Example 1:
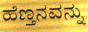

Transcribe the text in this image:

ಹೆಣ್ತನವನ್ನು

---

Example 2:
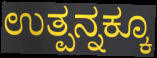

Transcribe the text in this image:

ಉತ್ಪನ್ನಕ್ಕೂ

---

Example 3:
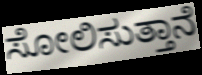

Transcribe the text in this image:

ಸೋಲಿಸುತ್ತಾನೆ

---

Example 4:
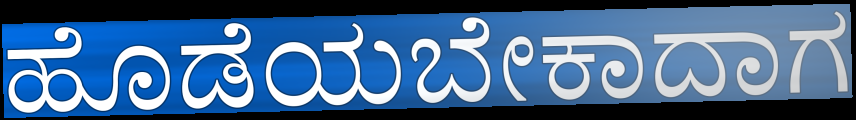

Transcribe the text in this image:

ಹೊಡೆಯಬೇಕಾದಾಗ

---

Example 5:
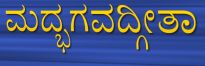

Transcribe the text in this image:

ಮದ್ಭಗವದ್ಗೀತಾ